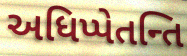
અધિપ્પેતન્તિ